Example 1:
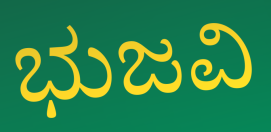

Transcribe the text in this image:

ಭುಜವಿ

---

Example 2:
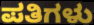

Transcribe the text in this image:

ಪತಿಗಳು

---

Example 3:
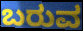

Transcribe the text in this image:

ಬರುವ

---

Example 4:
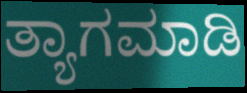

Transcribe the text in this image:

ತ್ಯಾಗಮಾಡಿ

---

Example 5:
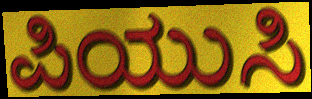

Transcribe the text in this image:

ಪಿಯುಸಿ